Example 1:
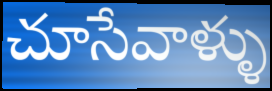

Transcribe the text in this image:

చూసేవాళ్ళు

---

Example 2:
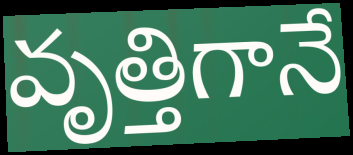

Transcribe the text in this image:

వృత్తిగానే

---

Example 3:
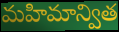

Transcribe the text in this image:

మహిమాన్విత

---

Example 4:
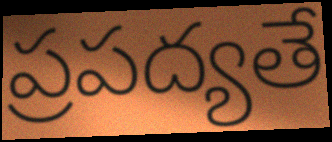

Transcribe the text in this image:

ప్రపద్యతే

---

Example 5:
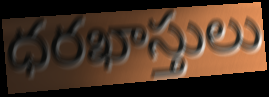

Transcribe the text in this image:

ధరఖాస్తులు